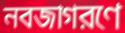
নবজাগরণে